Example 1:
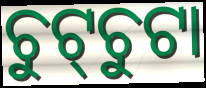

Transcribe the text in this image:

ଚୁଟ୍‌ଚୁଟା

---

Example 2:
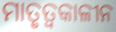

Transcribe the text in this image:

ମାତୃତ୍ୱକାଳୀନ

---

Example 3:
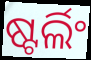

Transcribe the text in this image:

ଷ୍ଟର୍ଲିଂ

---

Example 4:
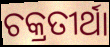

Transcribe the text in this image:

ଚକ୍ରତୀର୍ଥା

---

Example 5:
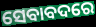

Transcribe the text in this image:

ସେବାବଦରେ